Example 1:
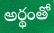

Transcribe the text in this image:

అర్థంతో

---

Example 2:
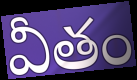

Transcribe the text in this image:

వీతం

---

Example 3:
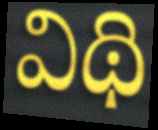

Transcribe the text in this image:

విథి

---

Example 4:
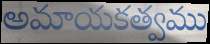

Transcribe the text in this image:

అమాయకత్వము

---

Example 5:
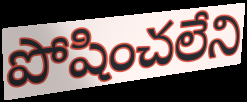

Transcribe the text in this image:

పోషించలేని